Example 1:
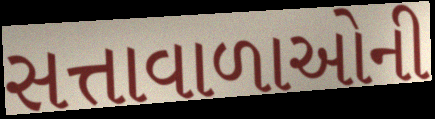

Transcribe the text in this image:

સત્તાવાળાઓની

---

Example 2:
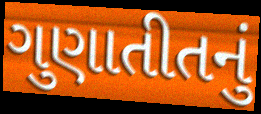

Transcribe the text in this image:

ગુણાતીતનું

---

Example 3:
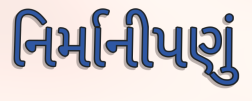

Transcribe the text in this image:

નિર્માનીપણું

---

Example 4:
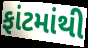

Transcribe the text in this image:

ફાંટમાંથી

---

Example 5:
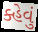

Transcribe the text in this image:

ક્હેવું